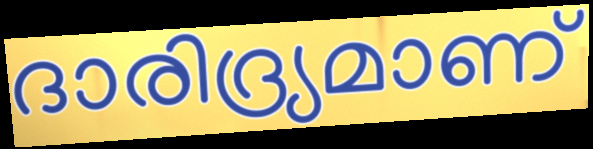
ദാരിദ്ര്യമാണ്